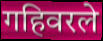
गहिवरले